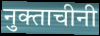
नुक्ताचीनी